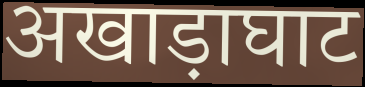
अखाड़ाघाट